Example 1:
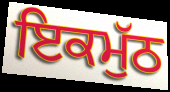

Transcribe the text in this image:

ਇਕਮੁੱਠ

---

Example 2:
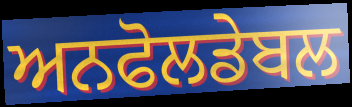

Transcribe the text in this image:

ਅਨਫੋਲਡੇਬਲ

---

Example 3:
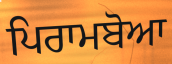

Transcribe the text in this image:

ਪਿਰਾਮਬੋਆ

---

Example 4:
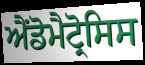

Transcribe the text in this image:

ਐਂਡੋਮੈਟ੍ਰੋਸਿਸ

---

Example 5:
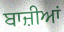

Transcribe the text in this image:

ਬਾਜ਼ੀਆਂ